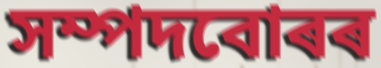
সম্পদবোৰৰ